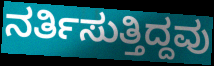
ನರ್ತಿಸುತ್ತಿದ್ದವು